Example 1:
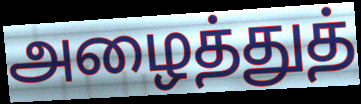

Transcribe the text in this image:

அழைத்துத்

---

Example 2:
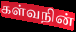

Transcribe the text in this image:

கள்வநின்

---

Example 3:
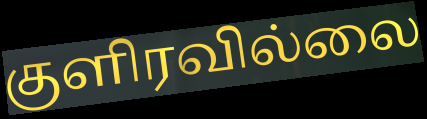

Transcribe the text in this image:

குளிரவில்லை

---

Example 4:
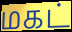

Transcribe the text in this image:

மகட்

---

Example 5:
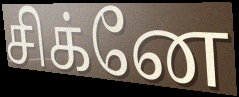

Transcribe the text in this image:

சிக்னே